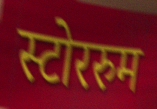
स्टोररुम